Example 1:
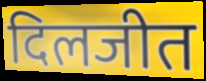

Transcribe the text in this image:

दिलजीत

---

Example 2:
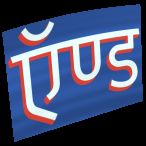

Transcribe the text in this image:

ऍण्ड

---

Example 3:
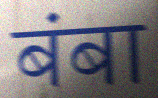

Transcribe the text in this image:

बंबा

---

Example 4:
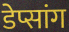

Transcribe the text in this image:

डेप्सांग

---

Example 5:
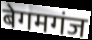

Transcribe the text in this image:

बेगमगंज